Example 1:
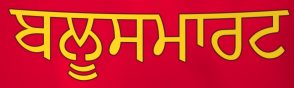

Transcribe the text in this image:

ਬਲੂਸਮਾਰਟ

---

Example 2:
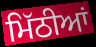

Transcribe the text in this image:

ਮਿੱਠੀਆਂ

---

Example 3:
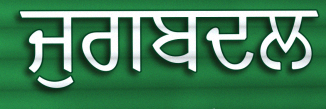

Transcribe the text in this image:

ਜੁਗਬਦਲ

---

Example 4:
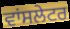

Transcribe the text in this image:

ਵਾਂਸਲੇਟਰ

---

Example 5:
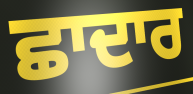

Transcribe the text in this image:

ਛਾਦਾਰ